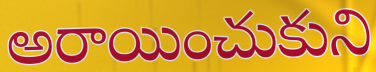
అరాయించుకుని